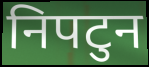
निपटुन